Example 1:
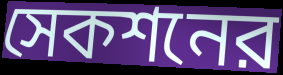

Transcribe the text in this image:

সেকশনের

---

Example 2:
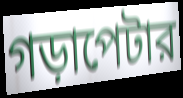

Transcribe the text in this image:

গড়াপেটার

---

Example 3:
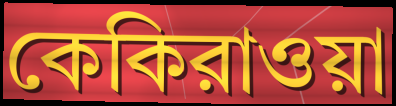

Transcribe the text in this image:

কেকিরাওয়া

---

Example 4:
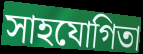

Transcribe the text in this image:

সাহযোগিতা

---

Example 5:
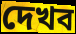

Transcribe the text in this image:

দেখব